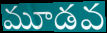
మూడవ